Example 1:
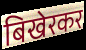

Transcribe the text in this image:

बिखेरकर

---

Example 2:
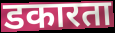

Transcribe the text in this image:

डकारता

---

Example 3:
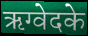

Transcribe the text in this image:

ऋग्वेदके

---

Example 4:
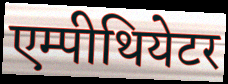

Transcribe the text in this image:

एम्पीथियेटर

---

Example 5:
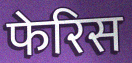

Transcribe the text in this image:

फेरिस